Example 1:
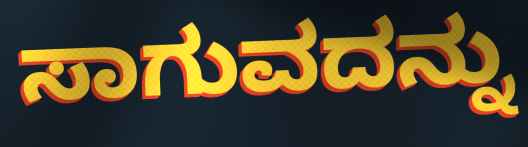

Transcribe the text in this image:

ಸಾಗುವದನ್ನು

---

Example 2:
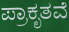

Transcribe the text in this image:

ಪ್ರಾಕೃತವೆ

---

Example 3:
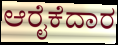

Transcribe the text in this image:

ಆರೈಕೆದಾರ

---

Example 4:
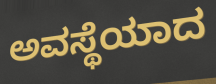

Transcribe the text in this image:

ಅವಸ್ಥೆಯಾದ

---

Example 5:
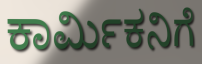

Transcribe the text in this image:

ಕಾರ್ಮಿಕನಿಗೆ